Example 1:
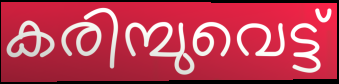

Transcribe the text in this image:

കരിമ്പുവെട്ട്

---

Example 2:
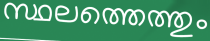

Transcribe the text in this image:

സ്ഥലത്തെത്തും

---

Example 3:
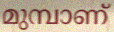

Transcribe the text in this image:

മുമ്പാണ്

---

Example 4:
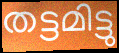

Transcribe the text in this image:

തട്ടമിട്ടു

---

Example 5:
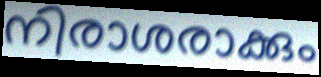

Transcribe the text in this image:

നിരാശരാക്കും